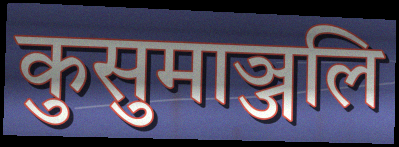
कुसुमाञ्जलि